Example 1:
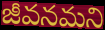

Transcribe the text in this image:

జీవనమని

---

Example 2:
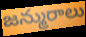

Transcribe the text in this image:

జన్మురాలు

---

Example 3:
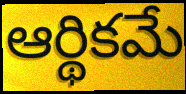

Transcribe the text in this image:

ఆర్థికమే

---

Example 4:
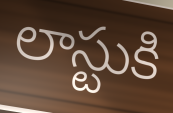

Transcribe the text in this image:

లాస్టుకి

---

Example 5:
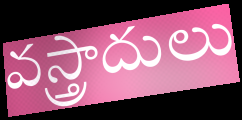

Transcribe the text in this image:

వస్త్రాదులు